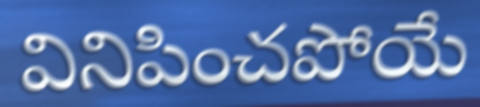
వినిపించపోయే